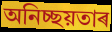
অনিচ্ছয়তাৰ